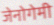
जेनोगेमी